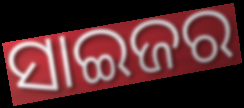
ସାଇଜର